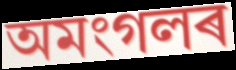
অমংগলৰ